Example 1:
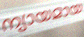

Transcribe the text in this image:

ന്യായമായ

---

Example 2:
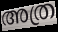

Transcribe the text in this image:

അത്ര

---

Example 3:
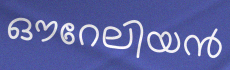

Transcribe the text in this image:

ഔറേലിയൻ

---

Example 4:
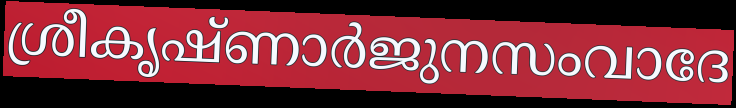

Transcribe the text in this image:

ശ്രീകൃഷ്ണാർജുനസംവാദേ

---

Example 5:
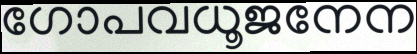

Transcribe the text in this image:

ഗോപവധൂജനേന